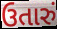
ઉતારું